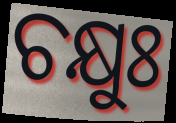
ଚକ୍ଷୁଃ